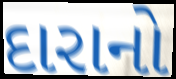
દારાનો